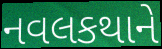
નવલકથાને